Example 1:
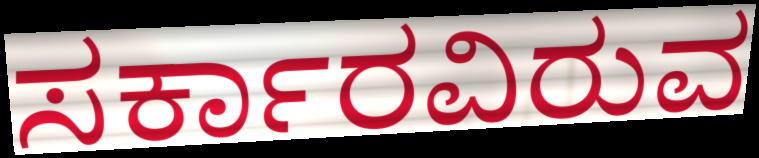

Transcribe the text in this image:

ಸರ್ಕಾರವಿರುವ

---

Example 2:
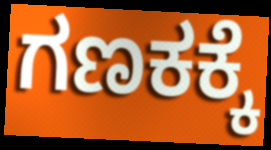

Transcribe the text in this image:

ಗಣಕಕ್ಕೆ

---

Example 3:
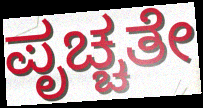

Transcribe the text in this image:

ಪೃಚ್ಚತೇ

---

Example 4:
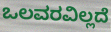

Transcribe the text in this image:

ಒಲವರವಿಲ್ಲದೆ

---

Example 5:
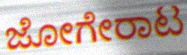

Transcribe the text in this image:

ಜೋಗೇರಾಟ